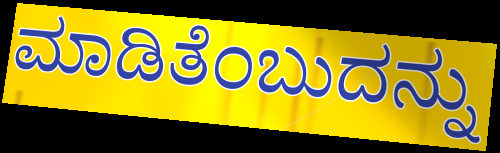
ಮಾಡಿತೆಂಬುದನ್ನು